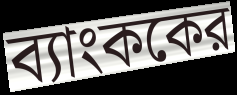
ব্যাংককের